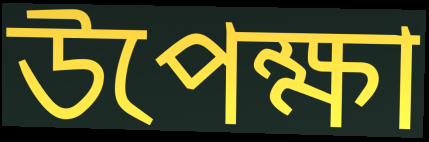
উপেক্ষা